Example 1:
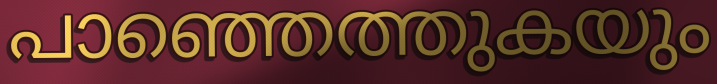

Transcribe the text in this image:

പാഞ്ഞെത്തുകയും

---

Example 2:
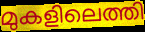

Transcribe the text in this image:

മുകളിലെത്തി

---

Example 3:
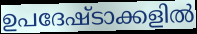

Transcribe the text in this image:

ഉപദേഷ്ടാക്കളിൽ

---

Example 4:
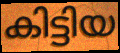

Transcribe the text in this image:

കിട്ടിയ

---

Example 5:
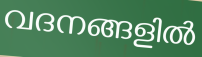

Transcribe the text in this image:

വദനങ്ങളിൽ